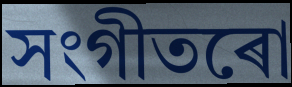
সংগীতৰো